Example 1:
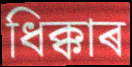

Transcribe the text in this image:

ধিক্কাৰ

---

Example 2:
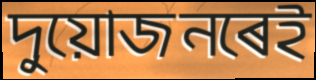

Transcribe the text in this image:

দুয়োজনৰেই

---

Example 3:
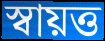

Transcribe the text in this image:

স্বায়ত্ত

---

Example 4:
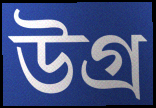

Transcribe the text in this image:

উগ্ৰ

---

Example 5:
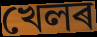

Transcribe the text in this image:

খেলৰ